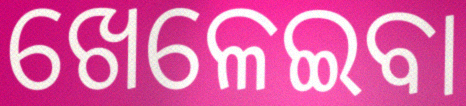
ଖେଳେଇବା